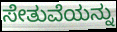
ಸೇತುವೆಯನ್ನು